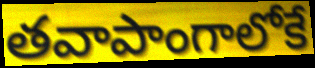
తవాపాంగాలోకే